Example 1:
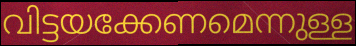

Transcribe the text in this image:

വിട്ടയക്കേണമെന്നുള്ള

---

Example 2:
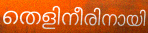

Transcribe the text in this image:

തെളിനീരിനായി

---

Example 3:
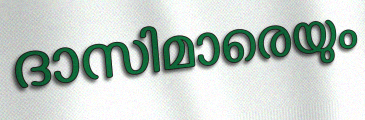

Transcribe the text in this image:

ദാസിമാരെയും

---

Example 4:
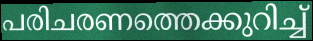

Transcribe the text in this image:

പരിചരണത്തെക്കുറിച്ച്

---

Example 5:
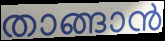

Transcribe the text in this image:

താങ്ങാൻ